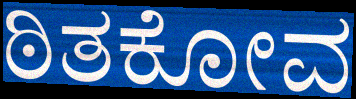
ಠಿತಕೋವ